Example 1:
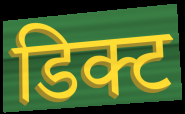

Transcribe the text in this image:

डिक्ट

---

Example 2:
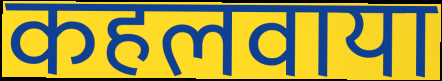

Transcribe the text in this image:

कहलवाया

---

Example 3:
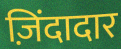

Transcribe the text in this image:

ज़िंदादार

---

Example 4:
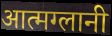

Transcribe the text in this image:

आत्मग्लानी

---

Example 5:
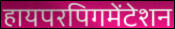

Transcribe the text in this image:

हायपरपिगमेंटेशन